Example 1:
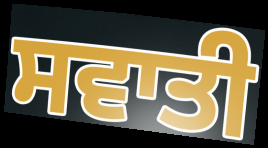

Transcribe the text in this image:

ਸਵਾਤੀ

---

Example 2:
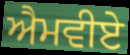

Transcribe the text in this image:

ਐਮਵੀਏ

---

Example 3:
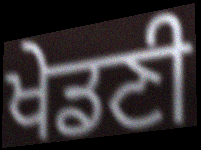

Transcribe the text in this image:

ਖੇਡਣੀ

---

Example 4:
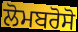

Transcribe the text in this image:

ਲੋਮਬਰੋਸੋ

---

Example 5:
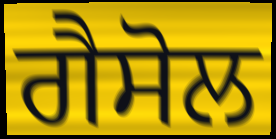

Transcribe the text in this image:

ਗੈਸੋਲ